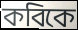
কবিকে